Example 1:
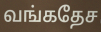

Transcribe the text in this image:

வங்கதேச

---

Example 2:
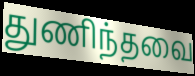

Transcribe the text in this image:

துணிந்தவை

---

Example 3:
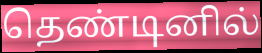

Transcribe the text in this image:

தெண்டினில்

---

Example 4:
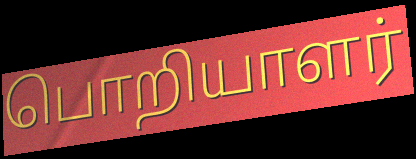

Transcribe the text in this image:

பொறியாளர்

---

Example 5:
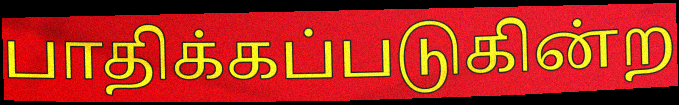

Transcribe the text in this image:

பாதிக்கப்படுகின்ற